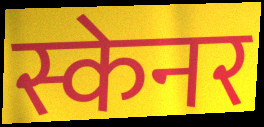
स्‍केनर